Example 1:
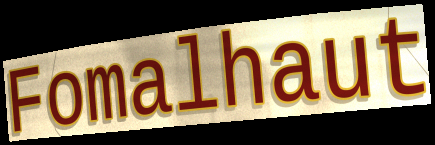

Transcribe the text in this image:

Fomalhaut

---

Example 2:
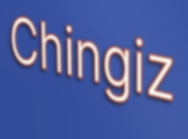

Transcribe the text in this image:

Chingiz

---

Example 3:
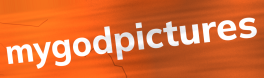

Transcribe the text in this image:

mygodpictures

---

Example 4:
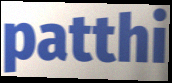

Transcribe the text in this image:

patthi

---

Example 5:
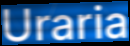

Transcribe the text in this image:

Uraria